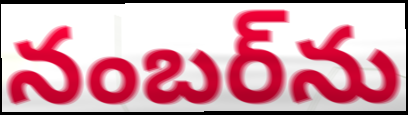
నంబర్‌ను